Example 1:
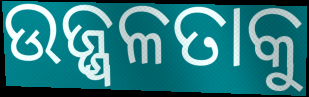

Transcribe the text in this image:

ଉଜ୍ଜ୍ୱଳତାକୁ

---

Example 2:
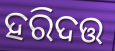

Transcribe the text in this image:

ହରିଦତ୍ତ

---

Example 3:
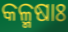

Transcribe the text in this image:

କଳ୍ମଷାଃ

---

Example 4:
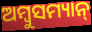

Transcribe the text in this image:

ଅମ୍ବୁସମ୍ୟାନ୍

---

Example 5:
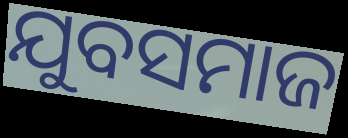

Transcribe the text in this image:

ଯୁବସମାଜ